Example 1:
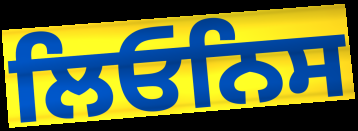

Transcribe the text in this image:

ਲਿਓਨਿਸ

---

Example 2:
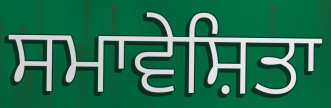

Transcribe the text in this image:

ਸਮਾਵੇਸ਼ਿਤਾ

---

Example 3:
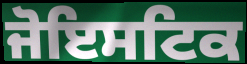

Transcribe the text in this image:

ਜੋਇਸਟਿਕ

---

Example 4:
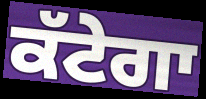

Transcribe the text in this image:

ਕੱਟੇਗਾ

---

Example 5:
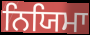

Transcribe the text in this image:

ਨਿਯਿਮਾ